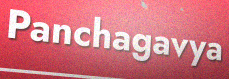
Panchagavya